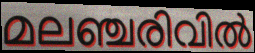
മലഞ്ചരിവിൽ